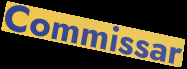
Commissar